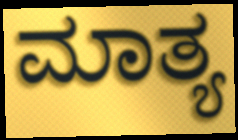
ಮಾತ್ಯ